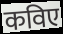
कविए